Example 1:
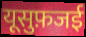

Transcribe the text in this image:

यूसुफ़जई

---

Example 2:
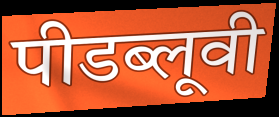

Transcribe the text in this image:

पीडब्लूवी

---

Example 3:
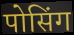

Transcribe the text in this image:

पोसिंग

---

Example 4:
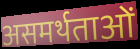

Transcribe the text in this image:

असमर्थताओं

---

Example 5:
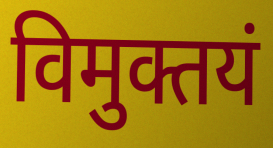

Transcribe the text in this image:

विमुक्तयं